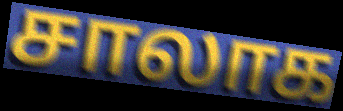
சாலாக